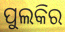
ପୁଲକିର